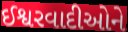
ઈશ્વરવાદીઓને